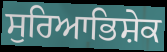
ਸੁਰਿਆਭਿਸ਼ੇਕ